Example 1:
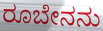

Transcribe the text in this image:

ರೂಬೇನನು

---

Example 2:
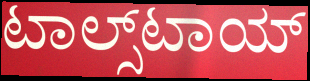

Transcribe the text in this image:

ಟಾಲ್ಸ್‌ಟಾಯ್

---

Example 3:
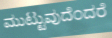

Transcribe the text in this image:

ಮುಟ್ಟುವುದೆಂದರೆ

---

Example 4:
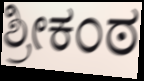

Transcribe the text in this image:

ಶ್ರೀಕಂಠ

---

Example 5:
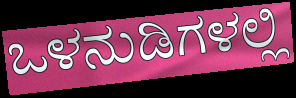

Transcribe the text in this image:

ಒಳನುಡಿಗಳಲ್ಲಿ